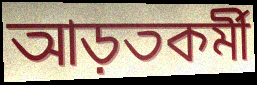
আড়তকর্মী